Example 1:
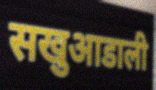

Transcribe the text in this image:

सखुआडाली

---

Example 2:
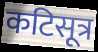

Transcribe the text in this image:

कटिसूत्र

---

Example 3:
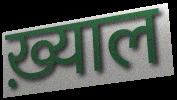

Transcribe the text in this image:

ख़्याल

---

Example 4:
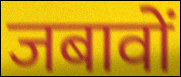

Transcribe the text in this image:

जबावों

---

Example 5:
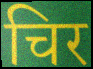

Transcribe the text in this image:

चिर